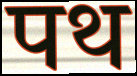
पथ